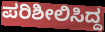
ಪರಿಶೀಲಿಸಿದ್ದ